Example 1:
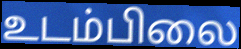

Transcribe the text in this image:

உடம்பிலை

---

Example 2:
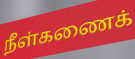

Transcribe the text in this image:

நீள்கணைக்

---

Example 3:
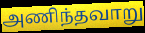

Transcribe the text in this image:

அணிந்தவாறு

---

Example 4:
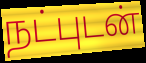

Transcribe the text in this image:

நட்புடன்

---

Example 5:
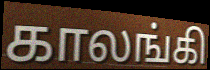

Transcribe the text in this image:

காலங்கி